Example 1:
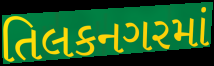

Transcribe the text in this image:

તિલકનગરમાં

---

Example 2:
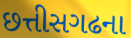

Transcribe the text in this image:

છત્તીસગઢના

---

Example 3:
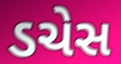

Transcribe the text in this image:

ડચેસ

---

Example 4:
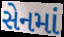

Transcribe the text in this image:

સેનમાં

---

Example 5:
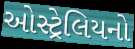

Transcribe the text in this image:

ઓસ્ટ્રેલિયનો